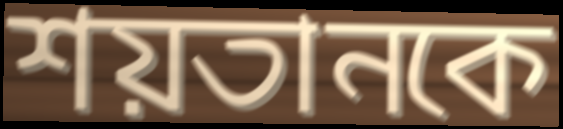
শয়তানকে